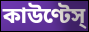
কাউণ্টেস্